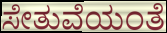
ಸೇತುವೆಯಂತೆ